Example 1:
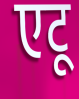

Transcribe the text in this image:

एटू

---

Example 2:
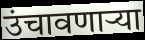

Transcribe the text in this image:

उंचावणाऱ्या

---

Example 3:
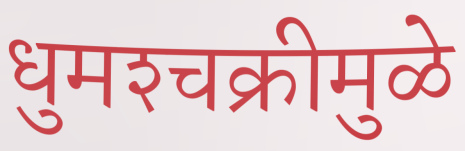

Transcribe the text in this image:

धुमश्चक्रीमुळे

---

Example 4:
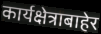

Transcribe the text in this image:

कार्यक्षेत्राबाहेर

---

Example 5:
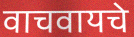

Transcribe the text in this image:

वाचवायचे